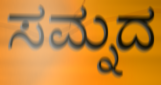
ಸಮ್ನದ